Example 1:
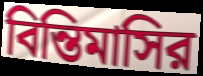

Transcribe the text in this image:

বিন্তিমাসির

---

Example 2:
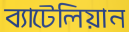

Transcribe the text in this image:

ব্যাটেলিয়ান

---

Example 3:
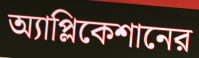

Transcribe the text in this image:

অ্যাপ্লিকেশানের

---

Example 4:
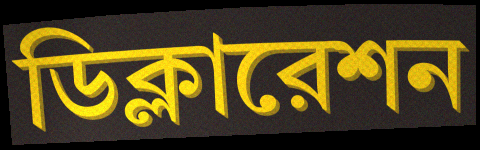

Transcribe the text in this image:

ডিক্লারেশন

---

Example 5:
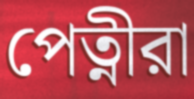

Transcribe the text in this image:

পেত্নীরা